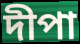
দীপা